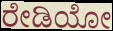
ರೇಡಿಯೋ